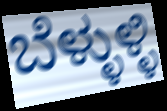
ಬೆಳ್ಳುಳ್ಳಿ